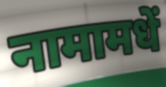
नामामधें